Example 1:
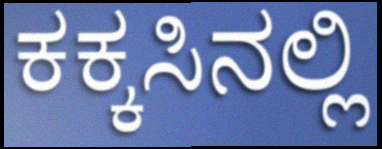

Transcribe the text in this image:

ಕಕ್ಕಸಿನಲ್ಲಿ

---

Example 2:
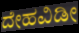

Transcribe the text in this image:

ದೇಹವಿಡೀ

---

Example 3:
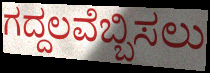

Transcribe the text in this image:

ಗದ್ದಲವೆಬ್ಬಿಸಲು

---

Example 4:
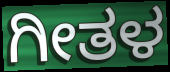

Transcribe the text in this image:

ಗೀತಳ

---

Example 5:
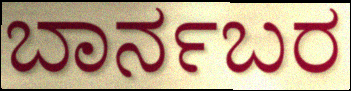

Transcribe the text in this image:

ಬಾರ್ನಬರ